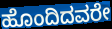
ಹೊಂದಿದವರೇ